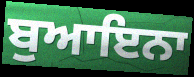
ਬੁਆਇਨਾ